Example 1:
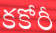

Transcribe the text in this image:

కకోరీ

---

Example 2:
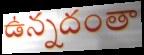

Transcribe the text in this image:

ఉన్నదంతా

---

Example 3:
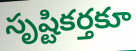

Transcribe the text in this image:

సృష్టికర్తకూ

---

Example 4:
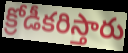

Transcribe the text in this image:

క్రోడీకరిస్తారు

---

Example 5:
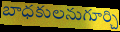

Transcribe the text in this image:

బాధకులనుగూర్చి